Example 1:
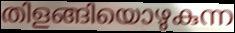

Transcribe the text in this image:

തിളങ്ങിയൊഴുകുന്ന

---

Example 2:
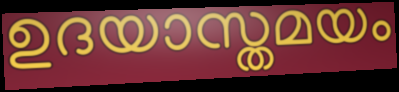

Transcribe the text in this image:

ഉദയാസ്തമയം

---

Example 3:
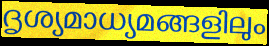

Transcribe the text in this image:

ദൃശ്യമാധ്യമങ്ങളിലും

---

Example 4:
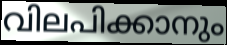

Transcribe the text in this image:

വിലപിക്കാനും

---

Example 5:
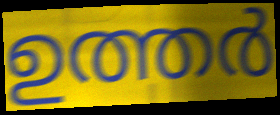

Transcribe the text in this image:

ഉത്തർ